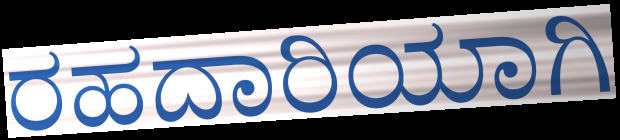
ರಹದಾರಿಯಾಗಿ